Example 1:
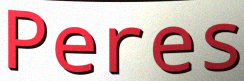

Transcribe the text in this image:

Peres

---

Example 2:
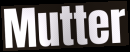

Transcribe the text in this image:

Mutter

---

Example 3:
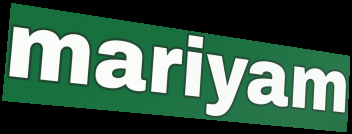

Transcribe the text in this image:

mariyam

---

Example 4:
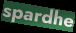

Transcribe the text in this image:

spardhe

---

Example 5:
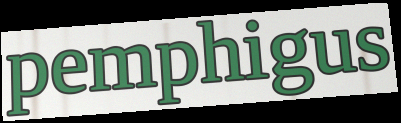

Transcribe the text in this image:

pemphigus